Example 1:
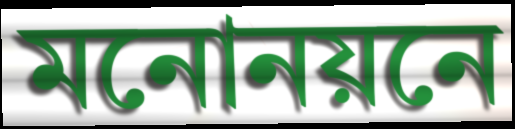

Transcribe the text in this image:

মনোনয়নে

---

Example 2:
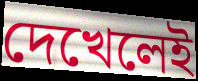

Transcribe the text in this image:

দেখেলেই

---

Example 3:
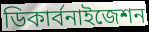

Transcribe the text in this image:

ডিকার্বনাইজেশন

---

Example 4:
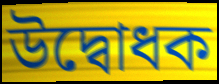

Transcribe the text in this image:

উদ্বোধক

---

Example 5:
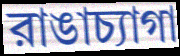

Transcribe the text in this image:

রাঙাচ্যাগা